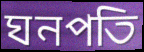
ঘনপতি